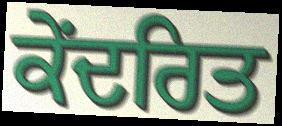
ਕੇਂਦਰਿਤ